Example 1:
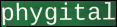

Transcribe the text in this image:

phygital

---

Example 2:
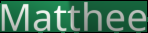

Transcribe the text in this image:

Matthee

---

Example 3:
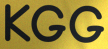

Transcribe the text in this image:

KGG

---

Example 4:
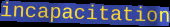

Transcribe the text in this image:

incapacitation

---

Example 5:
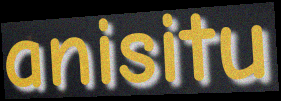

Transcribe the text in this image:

anisitu